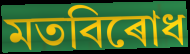
মতবিৰোধ